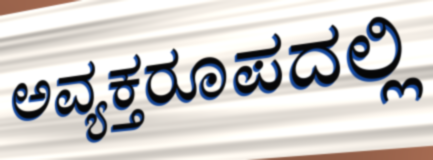
ಅವ್ಯಕ್ತರೂಪದಲ್ಲಿ